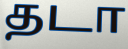
தடா